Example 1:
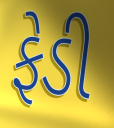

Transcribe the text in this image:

ફેડી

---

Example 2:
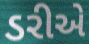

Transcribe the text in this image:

ડરીએ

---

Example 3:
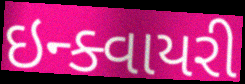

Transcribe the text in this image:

ઇન્ક્વાયરી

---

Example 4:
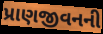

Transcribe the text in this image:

પ્રાણજીવનની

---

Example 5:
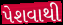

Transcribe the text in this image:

પેશવાથી